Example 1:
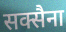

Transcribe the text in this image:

सक्सैना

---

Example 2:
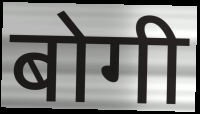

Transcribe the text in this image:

बोगी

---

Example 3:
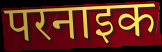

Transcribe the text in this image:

परनाइक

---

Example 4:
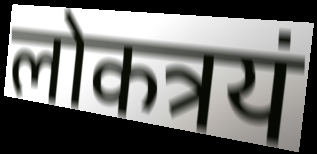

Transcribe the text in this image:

लोकत्रयं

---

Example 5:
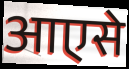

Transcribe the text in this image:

आएसे